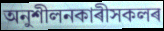
অনুশীলনকাৰীসকলৰ